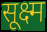
सूक्ष्म